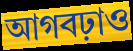
আগবঢ়াও